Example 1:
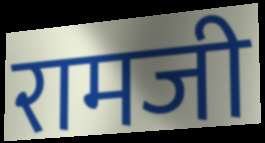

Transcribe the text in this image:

रामजी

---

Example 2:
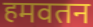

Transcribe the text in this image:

हमवतन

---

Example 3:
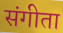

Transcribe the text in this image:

संगीता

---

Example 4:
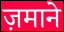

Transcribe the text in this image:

ज़माने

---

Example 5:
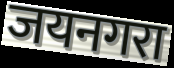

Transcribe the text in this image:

जयनगरा